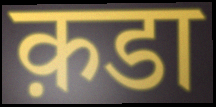
क़डा